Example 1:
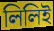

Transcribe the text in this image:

লিলিই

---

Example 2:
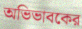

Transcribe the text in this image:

অভিভাবকের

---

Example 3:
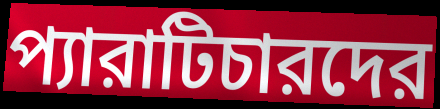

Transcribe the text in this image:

প্যারাটিচারদের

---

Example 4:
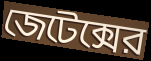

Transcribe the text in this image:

জেটেক্সের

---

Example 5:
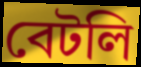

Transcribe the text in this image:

বেটলি